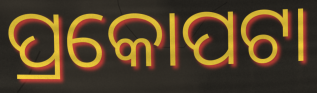
ପ୍ରକୋପଟା